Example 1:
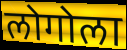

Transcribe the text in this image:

लोगोला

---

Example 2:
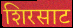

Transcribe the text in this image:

शिरसाट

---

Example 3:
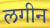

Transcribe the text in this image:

लगीन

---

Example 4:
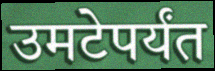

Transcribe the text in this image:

उमटेपर्यंत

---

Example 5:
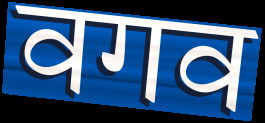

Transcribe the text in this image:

वगव